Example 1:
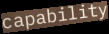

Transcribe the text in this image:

capability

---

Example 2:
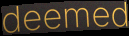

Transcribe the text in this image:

deemed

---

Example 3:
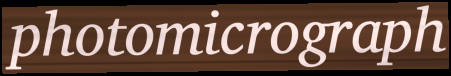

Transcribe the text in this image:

photomicrograph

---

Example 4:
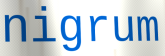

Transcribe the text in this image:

nigrum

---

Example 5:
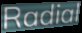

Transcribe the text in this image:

Radial